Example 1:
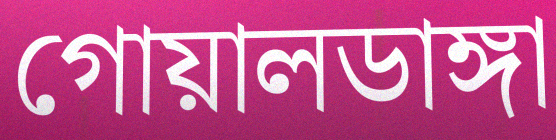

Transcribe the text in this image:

গোয়ালডাঙ্গা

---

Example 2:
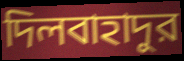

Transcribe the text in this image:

দিলবাহাদুর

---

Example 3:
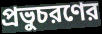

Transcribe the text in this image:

প্রভুচরণের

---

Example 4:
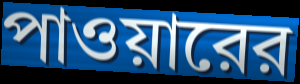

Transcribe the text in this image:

পাওয়ারের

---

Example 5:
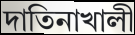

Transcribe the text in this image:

দাতিনাখালী